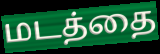
மடத்தை